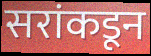
सरांकडून